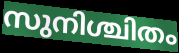
സുനിശ്ചിതം